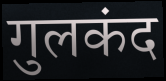
गुलकंद